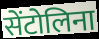
सेंटोलिना